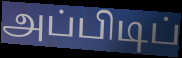
அப்பிடிப்